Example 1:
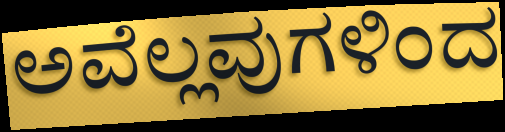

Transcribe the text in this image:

ಅವೆಲ್ಲವುಗಳಿಂದ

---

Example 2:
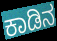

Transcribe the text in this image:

ಕಾಡಿನ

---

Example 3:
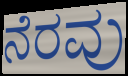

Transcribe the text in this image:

ನೆರವು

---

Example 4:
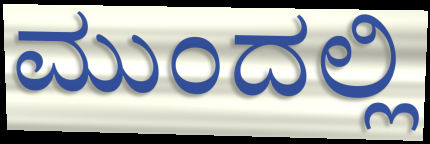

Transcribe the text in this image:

ಮುಂದಲ್ಲಿ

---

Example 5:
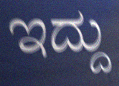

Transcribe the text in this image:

ಇದ್ದು